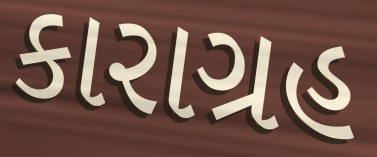
કારાગ્રહ